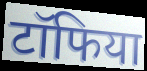
टॉफिया